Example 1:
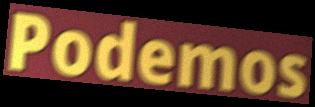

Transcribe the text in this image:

Podemos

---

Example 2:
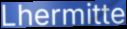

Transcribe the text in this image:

Lhermitte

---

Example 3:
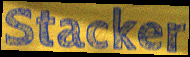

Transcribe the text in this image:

Stacker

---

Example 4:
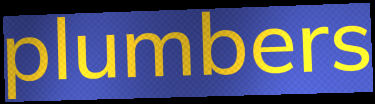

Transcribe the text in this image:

plumbers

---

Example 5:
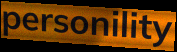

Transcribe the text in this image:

personility